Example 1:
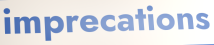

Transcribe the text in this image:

imprecations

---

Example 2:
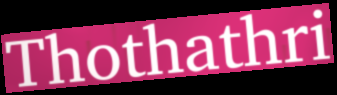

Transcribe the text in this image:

Thothathri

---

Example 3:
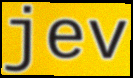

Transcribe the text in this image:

jev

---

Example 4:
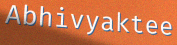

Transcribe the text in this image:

Abhivyaktee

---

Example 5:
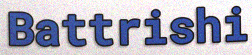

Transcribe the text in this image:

Battrishi